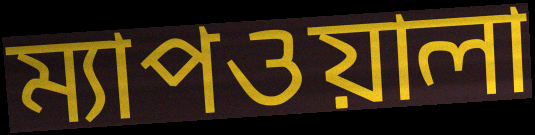
ম্যাপওয়ালা